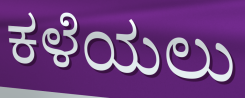
ಕಳೆಯಲು